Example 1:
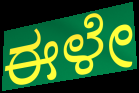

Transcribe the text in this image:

ಈಳೇ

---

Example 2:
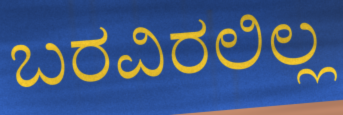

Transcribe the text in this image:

ಬರವಿರಲಿಲ್ಲ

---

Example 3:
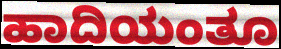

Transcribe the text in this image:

ಹಾದಿಯಂತೂ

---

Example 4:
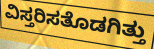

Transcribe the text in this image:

ವಿಸ್ತರಿಸತೊಡಗಿತ್ತು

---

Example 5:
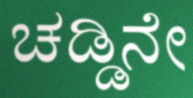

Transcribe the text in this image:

ಚಡ್ಡಿನೇ